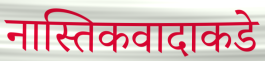
नास्तिकवादाकडे